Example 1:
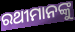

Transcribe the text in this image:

ରଥୀମାନଙ୍କୁ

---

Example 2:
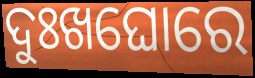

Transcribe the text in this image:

ଦୁଃଖଘୋରେ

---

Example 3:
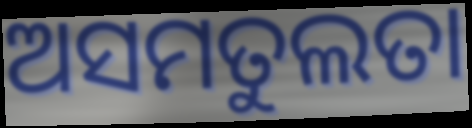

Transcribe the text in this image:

ଅସମତୁଲତା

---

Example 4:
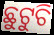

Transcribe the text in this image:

ଛୁଟୁଚି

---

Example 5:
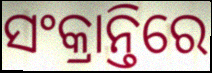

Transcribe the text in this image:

ସଂକ୍ରାନ୍ତିରେ